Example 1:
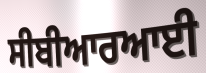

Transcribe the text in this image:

ਸੀਬੀਆਰਆਈ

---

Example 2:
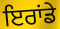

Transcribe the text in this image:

ਇਰਾਂਡੇ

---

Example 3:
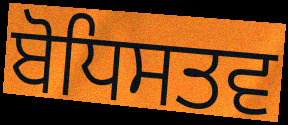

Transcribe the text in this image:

ਬੋਧਿਸਤਵ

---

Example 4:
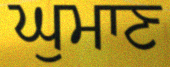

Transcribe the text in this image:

ਘੁਮਾਣ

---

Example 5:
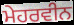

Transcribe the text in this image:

ਮੇਹਰਵੀਨ